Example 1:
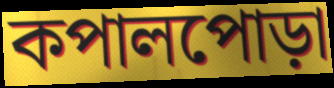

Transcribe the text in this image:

কপালপোড়া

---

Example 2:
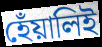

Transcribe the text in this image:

হেঁয়ালিই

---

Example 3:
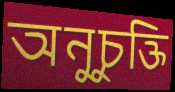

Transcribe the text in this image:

অনুচুক্তি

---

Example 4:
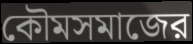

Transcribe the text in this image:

কৌমসমাজের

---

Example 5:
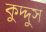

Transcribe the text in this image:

কুদ্দুস